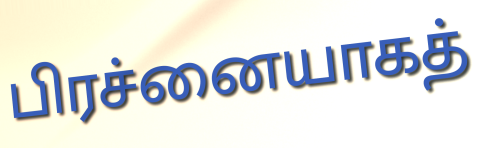
பிரச்னையாகத்